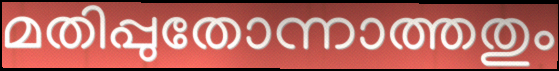
മതിപ്പുതോന്നാത്തതും